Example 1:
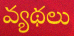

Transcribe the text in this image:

వ్యథలు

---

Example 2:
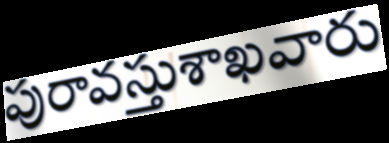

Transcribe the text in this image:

పురావస్తుశాఖవారు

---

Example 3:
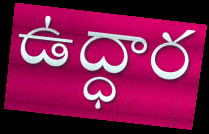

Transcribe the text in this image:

ఉద్ధార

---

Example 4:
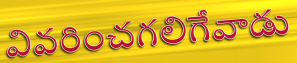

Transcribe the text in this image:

వివరించగలిగేవాడు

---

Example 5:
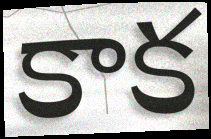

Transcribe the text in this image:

కాక